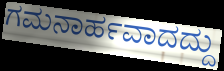
ಗಮನಾರ್ಹವಾದದ್ದು